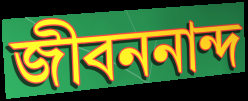
জীবননান্দ